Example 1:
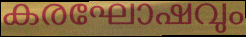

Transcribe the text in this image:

കരഘോഷവും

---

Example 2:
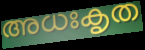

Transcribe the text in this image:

അധഃകൃത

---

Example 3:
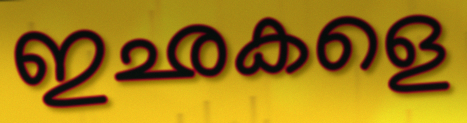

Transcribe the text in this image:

ഇഛകളെ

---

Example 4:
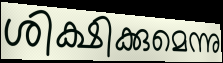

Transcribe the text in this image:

ശിക്ഷിക്കുമെന്നു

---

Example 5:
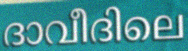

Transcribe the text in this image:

ദാവീദിലെ